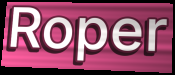
Roper